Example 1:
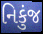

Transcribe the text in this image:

નિકુંજ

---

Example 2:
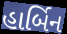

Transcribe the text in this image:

હાર્બિન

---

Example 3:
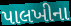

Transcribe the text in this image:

પાલખીના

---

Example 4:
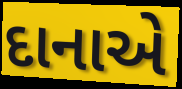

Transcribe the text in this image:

દાનાએ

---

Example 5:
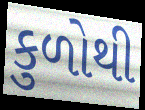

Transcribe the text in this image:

કુળોથી